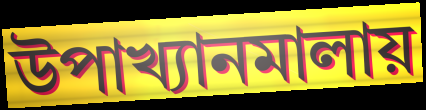
উপাখ্যানমালায়